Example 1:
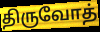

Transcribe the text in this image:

திருவோத்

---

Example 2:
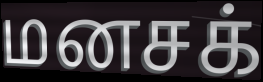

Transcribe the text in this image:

மனசக்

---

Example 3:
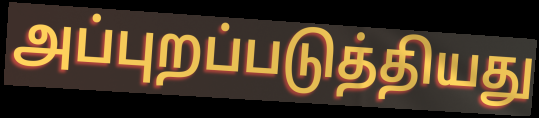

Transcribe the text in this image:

அப்புறப்படுத்தியது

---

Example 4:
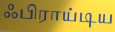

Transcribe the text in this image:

ஃபிராய்டிய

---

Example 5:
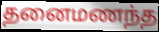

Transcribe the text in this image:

தனைமணந்த